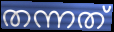
തന്നത്